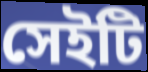
সেইটি